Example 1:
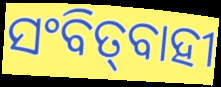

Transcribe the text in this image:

ସଂବିତ୍‌ବାହୀ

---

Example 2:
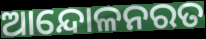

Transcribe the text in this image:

ଆନ୍ଦୋଳନରତ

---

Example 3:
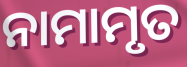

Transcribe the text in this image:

ନାମାମୃତ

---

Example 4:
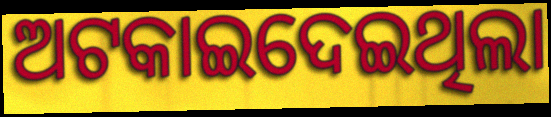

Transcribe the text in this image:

ଅଟକାଇଦେଇଥିଲା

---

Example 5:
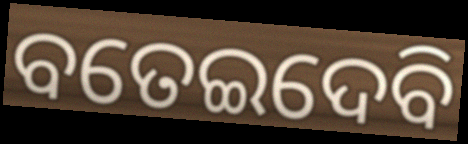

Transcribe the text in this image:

ବତେଇଦେବି